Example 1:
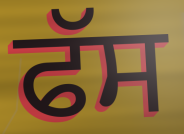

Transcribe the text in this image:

ਫੱਸ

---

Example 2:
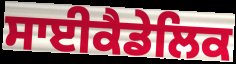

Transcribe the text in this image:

ਸਾਈਕੈਡੇਲਿਕ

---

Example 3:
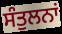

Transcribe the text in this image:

ਸੰਤੁਲਨਾਂ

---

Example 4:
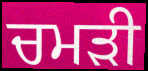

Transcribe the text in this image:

ਚਮਡ਼ੀ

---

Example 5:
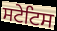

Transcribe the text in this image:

ਸਟੇਟਿਸ